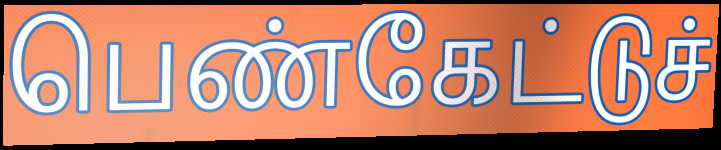
பெண்கேட்டுச்